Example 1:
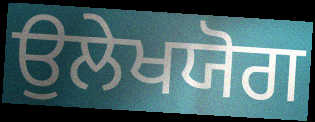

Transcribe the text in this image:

ਉਲੇਖਯੋਗ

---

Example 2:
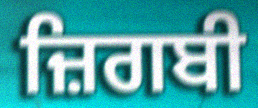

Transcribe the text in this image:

ਜ਼ਿਗਬੀ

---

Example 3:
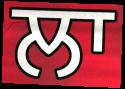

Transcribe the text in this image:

ਲਾ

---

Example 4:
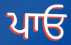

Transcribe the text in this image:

ਪਾਓ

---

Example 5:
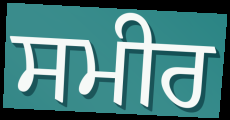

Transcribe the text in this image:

ਸਮੀਰ